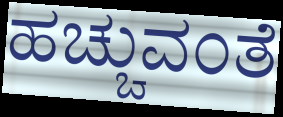
ಹಚ್ಚುವಂತೆ